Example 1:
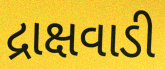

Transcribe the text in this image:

દ્રાક્ષવાડી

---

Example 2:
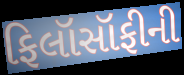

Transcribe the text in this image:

ફિલૉસૉફીની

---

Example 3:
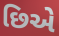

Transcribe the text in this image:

છિએ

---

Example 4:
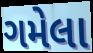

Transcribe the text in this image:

ગમેલા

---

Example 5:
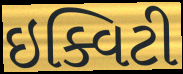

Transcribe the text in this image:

ઇક્વિટી